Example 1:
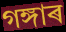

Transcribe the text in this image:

গঙ্গাৰ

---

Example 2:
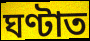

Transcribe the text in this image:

ঘণ্টাত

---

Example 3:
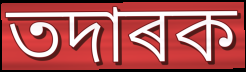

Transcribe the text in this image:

তদাৰক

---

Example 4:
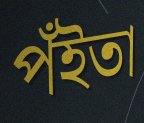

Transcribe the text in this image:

পঁইতা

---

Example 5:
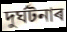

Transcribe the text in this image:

দুৰ্ঘটনাৰ